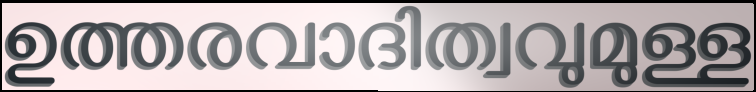
ഉത്തരവാദിത്വവുമുള്ള